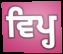
ਵਿਪ੍ਹ